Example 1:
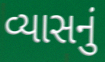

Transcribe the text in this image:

વ્યાસનું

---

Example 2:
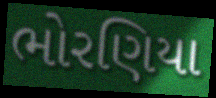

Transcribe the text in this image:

ભોરણિયા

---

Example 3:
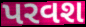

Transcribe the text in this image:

પરવશ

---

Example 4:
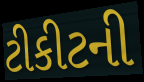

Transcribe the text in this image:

ટીકીટની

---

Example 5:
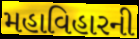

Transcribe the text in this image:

મહાવિહારની